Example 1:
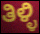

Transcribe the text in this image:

ತಿಳ್ಳಿ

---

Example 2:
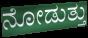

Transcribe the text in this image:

ನೋಡುತ್ತು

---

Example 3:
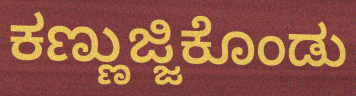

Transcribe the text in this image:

ಕಣ್ಣುಜ್ಜಿಕೊಂಡು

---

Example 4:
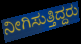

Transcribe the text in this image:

ನೀಗಿಸುತ್ತಿದ್ದರು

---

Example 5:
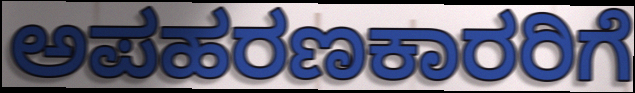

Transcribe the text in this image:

ಅಪಹರಣಕಾರರಿಗೆ